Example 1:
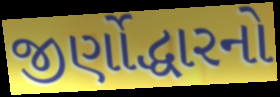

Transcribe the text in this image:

જીર્ણોદ્ધારનો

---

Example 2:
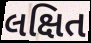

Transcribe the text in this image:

લક્ષિત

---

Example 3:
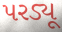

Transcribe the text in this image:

પરડ્યૂ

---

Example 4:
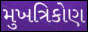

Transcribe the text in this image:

મુખત્રિકોણ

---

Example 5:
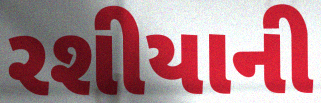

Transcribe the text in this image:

રશીયાની